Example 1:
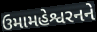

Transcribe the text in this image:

ઉમામહેશ્વરનને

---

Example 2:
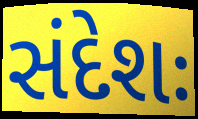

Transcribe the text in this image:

સંદેશઃ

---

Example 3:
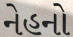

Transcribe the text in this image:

નેહનો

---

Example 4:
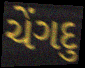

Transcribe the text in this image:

ચેંગદુ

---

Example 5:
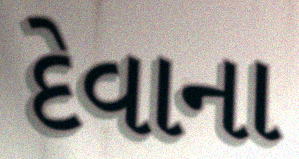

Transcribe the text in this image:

દેવાના